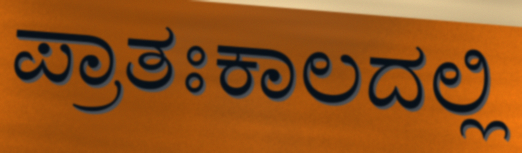
ಪ್ರಾತಃಕಾಲದಲ್ಲಿ